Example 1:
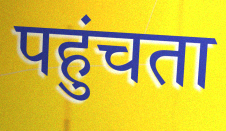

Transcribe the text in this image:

पहुंचता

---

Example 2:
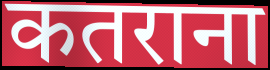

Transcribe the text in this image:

कतराना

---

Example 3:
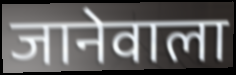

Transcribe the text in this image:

जानेवाला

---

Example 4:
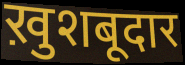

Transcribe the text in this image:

ख़ुशबूदार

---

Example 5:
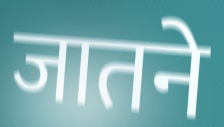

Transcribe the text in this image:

जातने